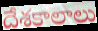
దేశకాలాలు